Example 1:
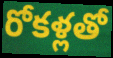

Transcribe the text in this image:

రోకళ్లతో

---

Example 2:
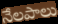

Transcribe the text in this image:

నేలపాలు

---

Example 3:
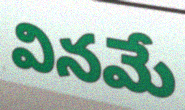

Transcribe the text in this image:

వినమే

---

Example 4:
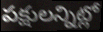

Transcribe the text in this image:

పక్షులన్నిట్లో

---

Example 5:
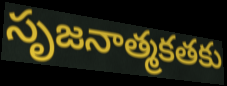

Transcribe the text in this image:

సృజనాత్మకతకు